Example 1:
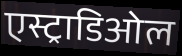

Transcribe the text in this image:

एस्ट्राडिओल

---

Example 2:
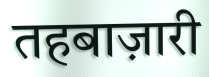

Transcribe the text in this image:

तहबाज़ारी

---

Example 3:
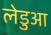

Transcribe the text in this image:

लेडुआ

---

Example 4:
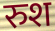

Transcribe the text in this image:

रुश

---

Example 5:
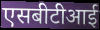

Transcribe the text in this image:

एसबीटीआई